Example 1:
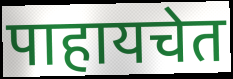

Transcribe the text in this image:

पाहायचेत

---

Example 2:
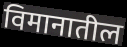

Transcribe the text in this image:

विमानातील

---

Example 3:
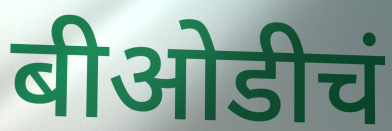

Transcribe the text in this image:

बीओडीचं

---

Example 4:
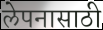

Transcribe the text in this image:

लेपनासाठी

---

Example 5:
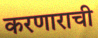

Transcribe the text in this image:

करणाराची